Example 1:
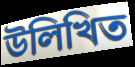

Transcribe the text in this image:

উলিখিত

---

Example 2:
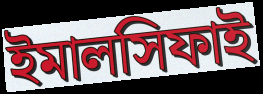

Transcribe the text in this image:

ইমালসিফাই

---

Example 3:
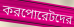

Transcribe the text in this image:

করপোরেটদের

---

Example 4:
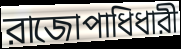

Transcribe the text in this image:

রাজোপাধিধারী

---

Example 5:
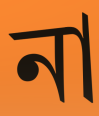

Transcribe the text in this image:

না